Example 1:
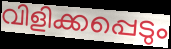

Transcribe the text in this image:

വിളിക്കപ്പെടും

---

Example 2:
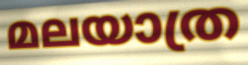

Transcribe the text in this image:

മലയാത്ര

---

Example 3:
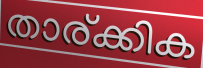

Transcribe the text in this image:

താര്ക്കിക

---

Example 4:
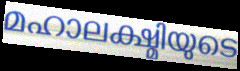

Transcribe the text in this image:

മഹാലക്ഷ്മിയുടെ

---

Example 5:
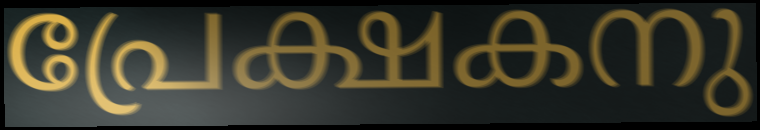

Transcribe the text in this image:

പ്രേക്ഷകനു